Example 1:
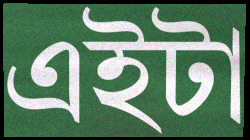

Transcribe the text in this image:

এইটা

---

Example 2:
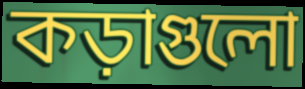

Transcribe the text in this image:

কড়াগুলো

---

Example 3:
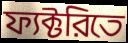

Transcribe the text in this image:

ফ্যক্টরিতে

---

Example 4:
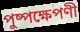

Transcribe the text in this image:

পুষ্পক্ষেপণী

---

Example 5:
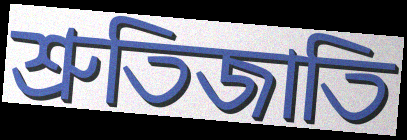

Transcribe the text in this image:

শ্রুতিজাতি